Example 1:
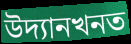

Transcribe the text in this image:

উদ্যানখনত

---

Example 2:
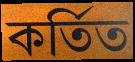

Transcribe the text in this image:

কৰ্তিত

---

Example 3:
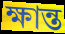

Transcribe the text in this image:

ক্ষান্ত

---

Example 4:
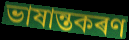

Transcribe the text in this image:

ভাষান্তকৰণ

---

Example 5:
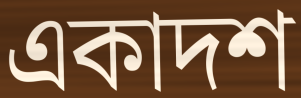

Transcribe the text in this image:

একাদশ